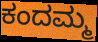
ಕಂದಮ್ಮ